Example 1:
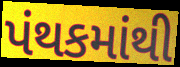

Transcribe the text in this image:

પંથકમાંથી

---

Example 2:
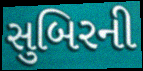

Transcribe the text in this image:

સુબિરની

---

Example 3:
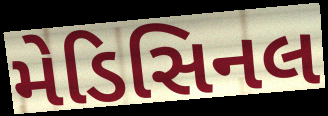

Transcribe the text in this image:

મેડિસિનલ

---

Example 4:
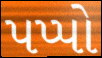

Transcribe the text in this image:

પપ્પો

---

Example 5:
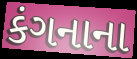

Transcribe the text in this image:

કંગનાના